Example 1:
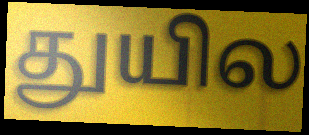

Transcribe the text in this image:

துயில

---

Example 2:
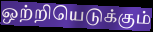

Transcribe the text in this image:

ஒற்றியெடுக்கும்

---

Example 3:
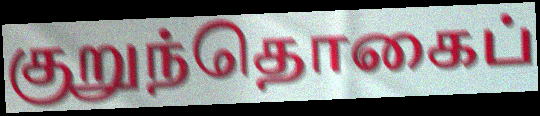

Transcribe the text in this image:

குறுந்தொகைப்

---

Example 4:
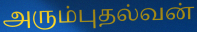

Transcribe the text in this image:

அரும்புதல்வன்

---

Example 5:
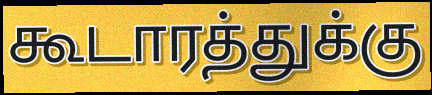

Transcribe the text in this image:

கூடாரத்துக்கு